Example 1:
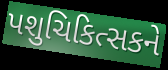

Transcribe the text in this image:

પશુચિકિત્સકને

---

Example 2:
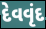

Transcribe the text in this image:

દેવવૃંદ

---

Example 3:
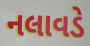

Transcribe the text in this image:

નલાવડે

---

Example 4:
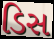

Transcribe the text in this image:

ડિસ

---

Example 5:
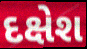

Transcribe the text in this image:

દક્ષેશ